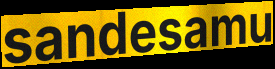
sandesamu